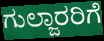
ಗುಲ್ಜಾರರಿಗೆ